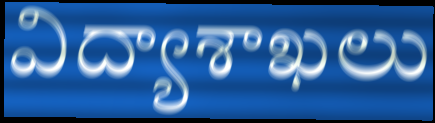
విద్యాశాఖలు